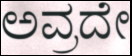
ಅವ್ರದೇ